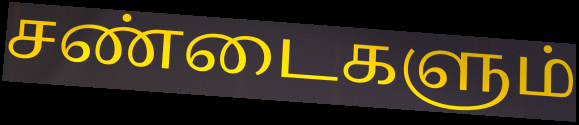
சண்டைகளும்